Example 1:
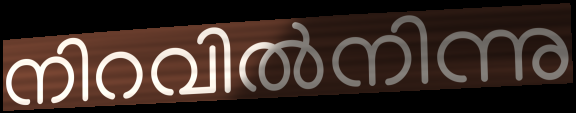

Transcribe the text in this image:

നിറവിൽനിന്നു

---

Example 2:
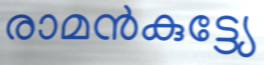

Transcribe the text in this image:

രാമൻകുട്ട്യേ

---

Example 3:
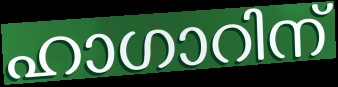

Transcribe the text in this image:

ഹാഗാറിന്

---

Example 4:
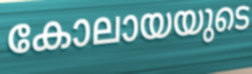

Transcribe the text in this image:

കോലായയുടെ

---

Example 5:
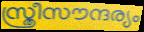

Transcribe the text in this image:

സ്ത്രീസൗന്ദര്യം